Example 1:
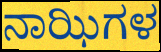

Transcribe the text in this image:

ನಾಝಿಗಳ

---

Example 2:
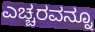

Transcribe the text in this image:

ಎಚ್ಚರವನ್ನೂ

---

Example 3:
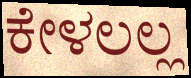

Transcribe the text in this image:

ಕೇಳಲಲ್ಲ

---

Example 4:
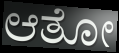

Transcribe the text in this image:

ಆತೋ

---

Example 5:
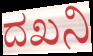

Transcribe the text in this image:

ದಖನಿ